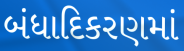
બંધાદિકરણમાં